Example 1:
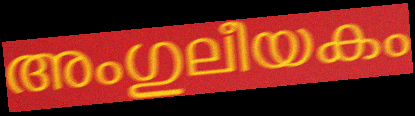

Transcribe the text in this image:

അംഗുലീയകം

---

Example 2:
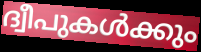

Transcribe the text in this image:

ദ്വീപുകൾക്കും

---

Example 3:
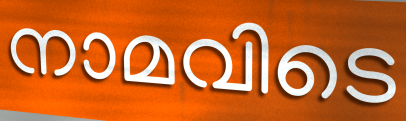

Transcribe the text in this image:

നാമവിടെ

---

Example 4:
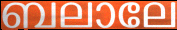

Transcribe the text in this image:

ബലാലേ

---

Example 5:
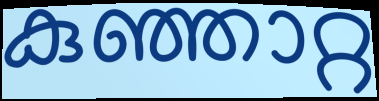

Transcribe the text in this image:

കുഞ്ഞാറ്റ